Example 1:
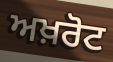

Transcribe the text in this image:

ਅਖ਼ਰੋਟ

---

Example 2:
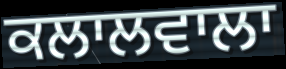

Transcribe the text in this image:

ਕਲਾਲਵਾਲਾ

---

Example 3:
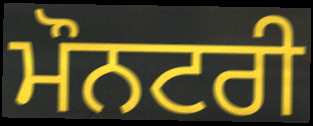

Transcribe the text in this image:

ਮੌਨਟਰੀ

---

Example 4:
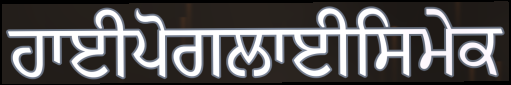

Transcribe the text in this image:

ਹਾਈਪੋਗਲਾਈਸਿਮੇਕ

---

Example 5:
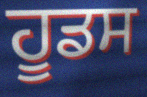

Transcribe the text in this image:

ਹੂਡਸ